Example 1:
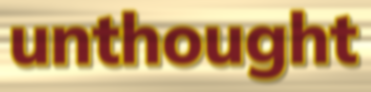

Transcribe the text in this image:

unthought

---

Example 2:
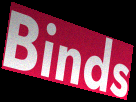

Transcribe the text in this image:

Binds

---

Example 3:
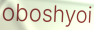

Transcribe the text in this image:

oboshyoi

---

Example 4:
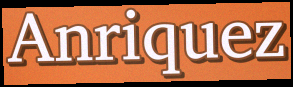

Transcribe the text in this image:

Anriquez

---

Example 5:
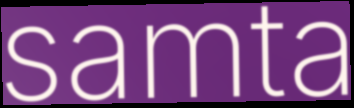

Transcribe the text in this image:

samta